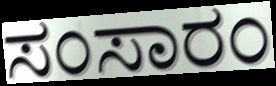
ಸಂಸಾರಂ